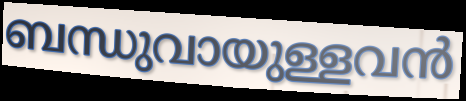
ബന്ധുവായുള്ളവൻ